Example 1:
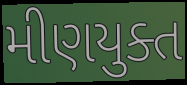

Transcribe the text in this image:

મીણયુક્ત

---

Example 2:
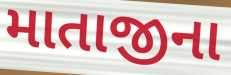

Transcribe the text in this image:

માતાજીના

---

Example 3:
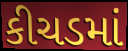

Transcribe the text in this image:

કીચડમાં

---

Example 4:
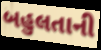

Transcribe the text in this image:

બહુલતાની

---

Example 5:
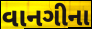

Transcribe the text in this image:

વાનગીના